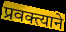
प्रवक्‍त्याने